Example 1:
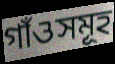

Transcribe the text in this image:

গাঁওসমূহ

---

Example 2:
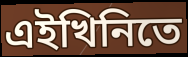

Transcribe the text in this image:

এইখিনিতে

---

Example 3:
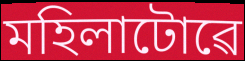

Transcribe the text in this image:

মহিলাটোৱে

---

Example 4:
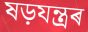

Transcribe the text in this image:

ষড়যন্ত্ৰৰ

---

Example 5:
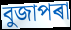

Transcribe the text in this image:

বুজাপৰা